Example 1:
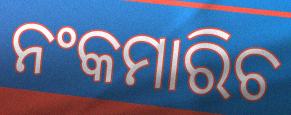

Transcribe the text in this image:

ନଂକମାରିଚ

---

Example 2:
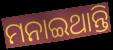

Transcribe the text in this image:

ମନାଇଥାନ୍ତି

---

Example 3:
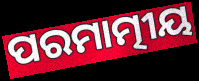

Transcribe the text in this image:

ପରମାତ୍ମୀୟ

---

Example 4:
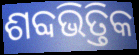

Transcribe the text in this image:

ଶବ୍ଦଭିତ୍ତିକ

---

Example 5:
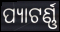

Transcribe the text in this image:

ପ୍ୟାଟର୍ଣ୍ଣ